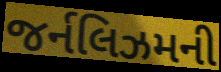
જર્નલિઝમની